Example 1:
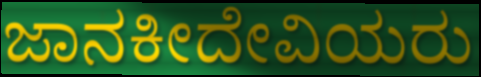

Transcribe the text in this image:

ಜಾನಕೀದೇವಿಯರು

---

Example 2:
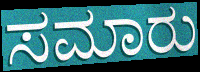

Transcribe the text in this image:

ಸಮಾರು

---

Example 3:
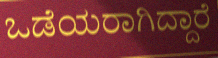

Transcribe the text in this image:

ಒಡೆಯರಾಗಿದ್ದಾರೆ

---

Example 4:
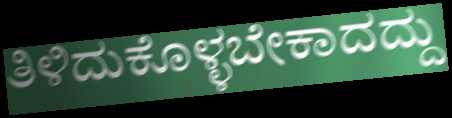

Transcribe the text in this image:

ತಿಳಿದುಕೊಳ್ಳಬೇಕಾದದ್ದು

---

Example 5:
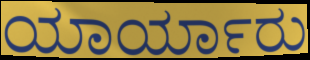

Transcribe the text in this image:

ಯಾರ್ಯಾರು